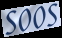
soos